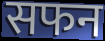
सफन